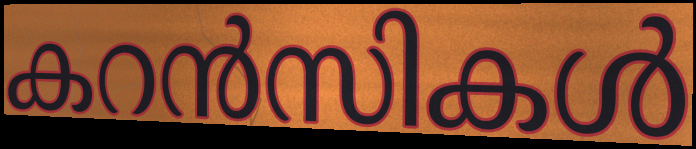
കറൻസികൾ